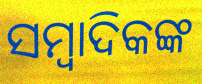
ସମ୍ୱାଦିକଙ୍କ